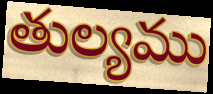
తుల్యము